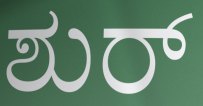
ಶುರ್